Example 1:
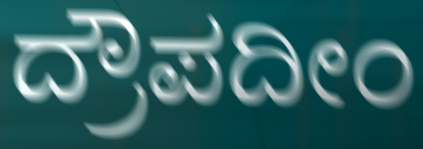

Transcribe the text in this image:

ದ್ರೌಪದೀಂ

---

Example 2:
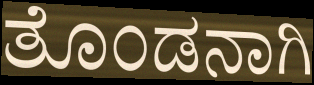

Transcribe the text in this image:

ತೊಂಡನಾಗಿ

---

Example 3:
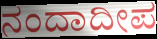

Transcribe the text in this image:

ನಂದಾದೀಪ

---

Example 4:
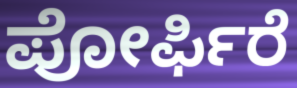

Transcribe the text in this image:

ಪೋರ್ಫಿರೆ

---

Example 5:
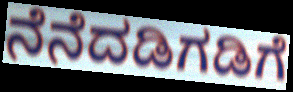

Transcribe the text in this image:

ನೆನೆದಡಿಗಡಿಗೆ